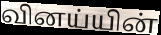
வினய்யின்